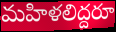
మహిళలిద్దరూ